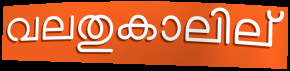
വലതുകാലില്